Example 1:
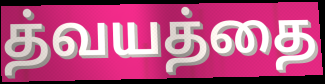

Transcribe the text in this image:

த்வயத்தை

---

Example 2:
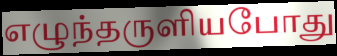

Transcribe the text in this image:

எழுந்தருளியபோது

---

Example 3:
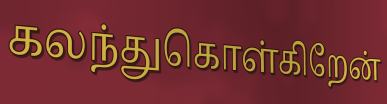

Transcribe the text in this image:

கலந்துகொள்கிறேன்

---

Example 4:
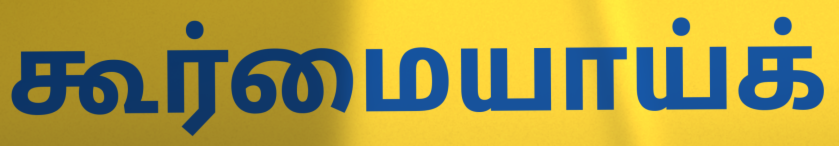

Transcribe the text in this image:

கூர்மையாய்க்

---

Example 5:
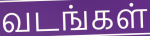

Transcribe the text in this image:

வடங்கள்